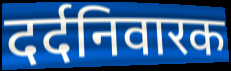
दर्दनिवारक